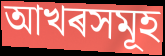
আখৰসমূহ